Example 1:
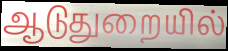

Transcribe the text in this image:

ஆடுதுறையில்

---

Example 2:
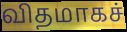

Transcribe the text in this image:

விதமாகச்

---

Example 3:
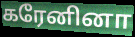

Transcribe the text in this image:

கரேனினா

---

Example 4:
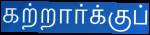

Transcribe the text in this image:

கற்றார்க்குப்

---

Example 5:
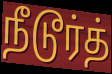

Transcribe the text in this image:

நீடூர்த்